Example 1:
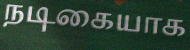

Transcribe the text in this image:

நடிகையாக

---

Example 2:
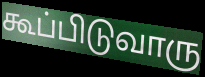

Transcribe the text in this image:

கூப்பிடுவாரு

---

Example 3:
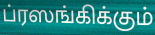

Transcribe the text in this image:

ப்ரஸங்கிக்கும்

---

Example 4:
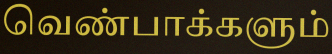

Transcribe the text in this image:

வெண்பாக்களும்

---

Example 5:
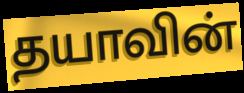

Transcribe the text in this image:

தயாவின்